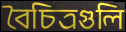
বৈচিত্রগুলি